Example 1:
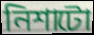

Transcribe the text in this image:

নিশাটো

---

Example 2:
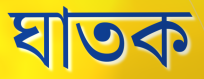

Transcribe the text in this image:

ঘাতক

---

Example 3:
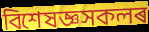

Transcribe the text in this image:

বিশেষজ্ঞসকলৰ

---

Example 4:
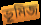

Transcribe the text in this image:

ভূমিজ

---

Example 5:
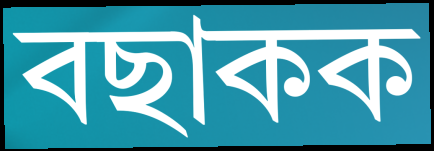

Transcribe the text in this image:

বছাকক